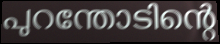
പുറന്തോടിന്റെ